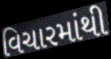
વિચારમાંથી